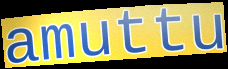
amuttu